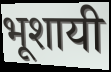
भूशायी